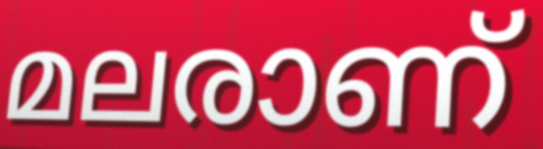
മലരാണ്